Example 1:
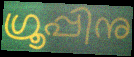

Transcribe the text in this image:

ഗ്രൂപ്പിനു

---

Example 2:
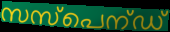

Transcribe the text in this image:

സസ്പെന്ഡ്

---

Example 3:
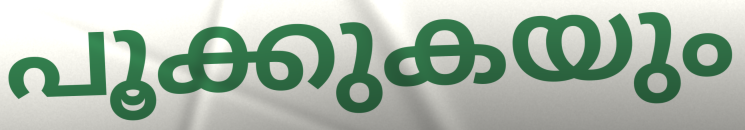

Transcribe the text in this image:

പൂക്കുകയും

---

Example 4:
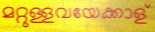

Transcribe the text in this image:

മറ്റുള്ളവയേക്കാള്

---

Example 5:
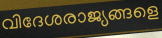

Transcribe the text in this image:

വിദേശരാജ്യങ്ങളെ